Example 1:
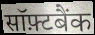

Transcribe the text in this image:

सॉफ़्टबैंक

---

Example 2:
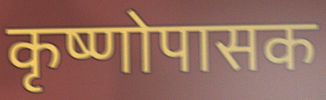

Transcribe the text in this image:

कृष्णोपासक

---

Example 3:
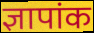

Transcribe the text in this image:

ज्ञापांक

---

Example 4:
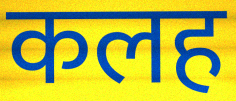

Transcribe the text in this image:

कलह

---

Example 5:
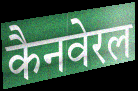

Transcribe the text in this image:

कैनवेरल